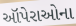
ઑપેરાઓના